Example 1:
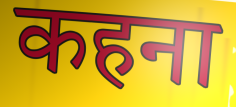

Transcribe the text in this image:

कहना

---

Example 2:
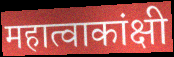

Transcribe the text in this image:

महात्वाकांक्षी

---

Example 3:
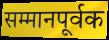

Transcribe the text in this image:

सम्मानपूर्वक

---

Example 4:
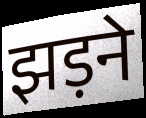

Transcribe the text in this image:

झड़ने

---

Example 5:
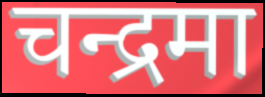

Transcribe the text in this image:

चन्द्रमा